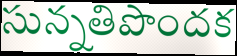
సున్నతిపొందక